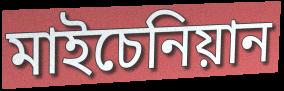
মাইচেনিয়ান